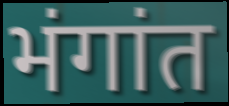
भंगांत